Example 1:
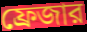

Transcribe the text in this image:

ফ্রেজার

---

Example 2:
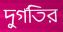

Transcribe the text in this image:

দুর্গতির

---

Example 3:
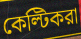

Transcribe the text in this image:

কেল্টিকরা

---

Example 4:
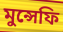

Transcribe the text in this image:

মুন্সেফি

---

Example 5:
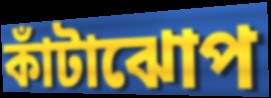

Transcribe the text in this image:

কাঁটাঝোপ